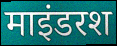
माइंडरश